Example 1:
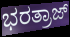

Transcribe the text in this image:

ಭರತ್ರಾಜ್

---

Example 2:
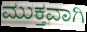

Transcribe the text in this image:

ಮುಕ್ತವಾಗಿ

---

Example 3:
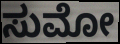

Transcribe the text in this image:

ಸುಮೋ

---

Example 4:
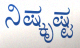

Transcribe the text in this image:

ನಿಷ್ಕೃಷ್ಟ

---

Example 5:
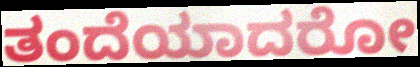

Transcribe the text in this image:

ತಂದೆಯಾದರೋ